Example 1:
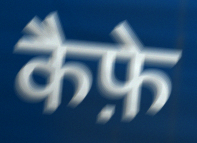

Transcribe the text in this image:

कैफ़े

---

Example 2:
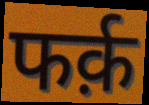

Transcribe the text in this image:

फर्क़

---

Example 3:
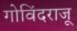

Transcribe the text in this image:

गोविंदराजू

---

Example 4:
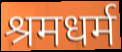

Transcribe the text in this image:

श्रमधर्म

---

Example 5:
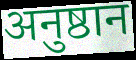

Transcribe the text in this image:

अनुष्ठान